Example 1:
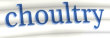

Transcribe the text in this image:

choultry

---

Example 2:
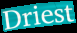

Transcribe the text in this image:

Driest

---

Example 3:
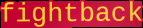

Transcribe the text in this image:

fightback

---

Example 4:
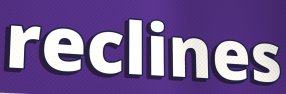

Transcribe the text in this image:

reclines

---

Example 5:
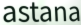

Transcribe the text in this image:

astana